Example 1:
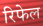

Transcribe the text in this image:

रिफेल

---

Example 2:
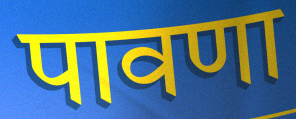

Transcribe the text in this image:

पावणा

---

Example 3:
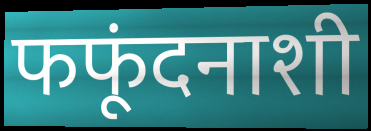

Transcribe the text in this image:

फफूंदनाशी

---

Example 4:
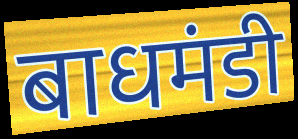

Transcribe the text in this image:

बाधमंडी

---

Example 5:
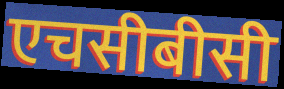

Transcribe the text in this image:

एचसीबीसी